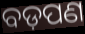
ବଡ଼ପଣ